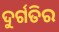
ଦୁର୍ଗତିର